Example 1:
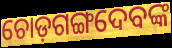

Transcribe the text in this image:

ଚୋଡ଼ଗଙ୍ଗଦେବଙ୍କ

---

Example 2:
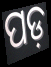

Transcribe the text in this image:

ପଡ଼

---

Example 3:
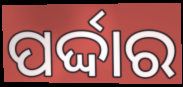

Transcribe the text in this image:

ପର୍ଦ୍ଦାର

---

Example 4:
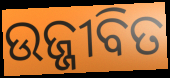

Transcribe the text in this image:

ଉଜ୍ଜୀବିତ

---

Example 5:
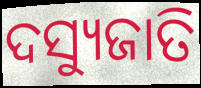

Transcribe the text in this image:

ଦସ୍ୟୁଜାତି